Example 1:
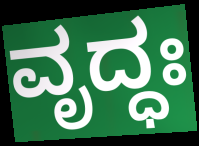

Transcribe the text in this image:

ವೃದ್ಧಃ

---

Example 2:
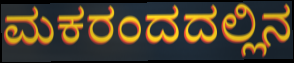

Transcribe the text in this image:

ಮಕರಂದದಲ್ಲಿನ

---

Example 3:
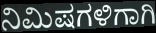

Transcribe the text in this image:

ನಿಮಿಷಗಳಿಗಾಗಿ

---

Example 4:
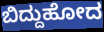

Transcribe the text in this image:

ಬಿದ್ದುಹೋದ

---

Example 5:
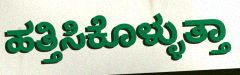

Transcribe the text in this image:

ಹತ್ತಿಸಿಕೊಳ್ಳುತ್ತಾ